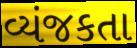
વ્યંજકતા